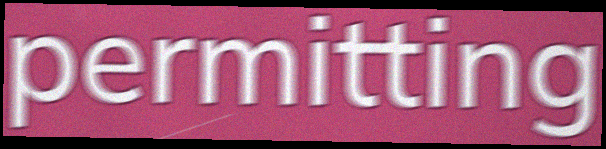
permitting